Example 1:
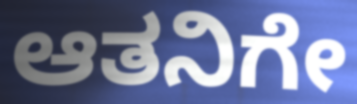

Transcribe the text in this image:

ಆತನಿಗೇ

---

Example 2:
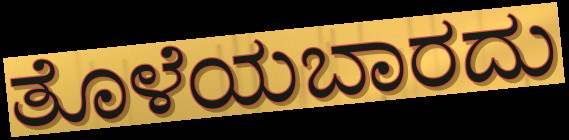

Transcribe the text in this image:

ತೊಳೆಯಬಾರದು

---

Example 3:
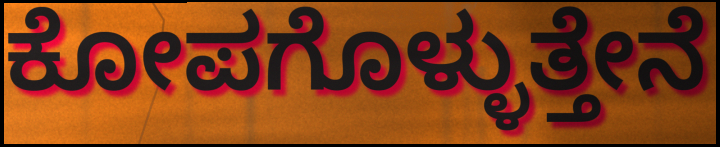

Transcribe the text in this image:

ಕೋಪಗೊಳ್ಳುತ್ತೇನೆ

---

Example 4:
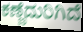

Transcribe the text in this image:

ಕಣ್ಣೆದುರಿಗಿದೆ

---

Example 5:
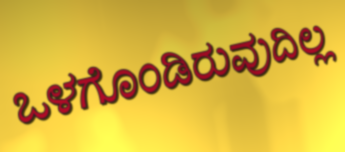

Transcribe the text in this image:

ಒಳಗೊಂಡಿರುವುದಿಲ್ಲ